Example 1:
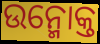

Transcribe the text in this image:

ଉନ୍ମୋକ୍ତ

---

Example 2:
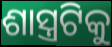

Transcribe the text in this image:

ଶାସ୍ତ୍ରଟିକୁ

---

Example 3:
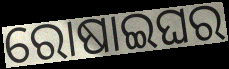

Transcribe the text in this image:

ରୋଷାଇଘର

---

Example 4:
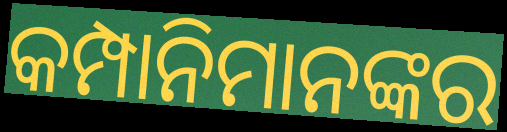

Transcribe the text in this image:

କମ୍ପାନିମାନଙ୍କର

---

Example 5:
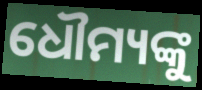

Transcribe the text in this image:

ଧୌମ୍ୟଙ୍କୁ